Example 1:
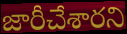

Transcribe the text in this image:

జారీచేశారని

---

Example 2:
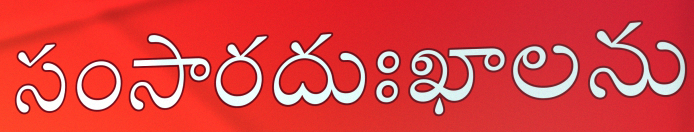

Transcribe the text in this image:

సంసారదుఃఖాలను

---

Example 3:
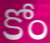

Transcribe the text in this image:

కోం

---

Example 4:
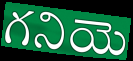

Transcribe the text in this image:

గనియె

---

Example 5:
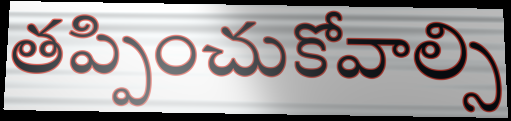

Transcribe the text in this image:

తప్పించుకోవాల్సి